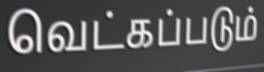
வெட்கப்படும்